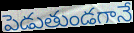
పెడుతుండగానే